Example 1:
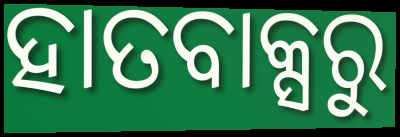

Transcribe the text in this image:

ହାତବାକ୍ସରୁ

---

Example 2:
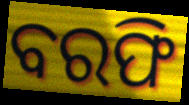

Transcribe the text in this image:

ବରଫି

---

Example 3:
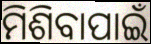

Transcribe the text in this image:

ମିଶିବାପାଇଁ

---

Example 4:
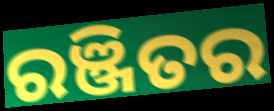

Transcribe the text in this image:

ରଞ୍ଜିତର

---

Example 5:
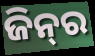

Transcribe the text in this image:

ଜିନ୍‌ର